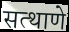
सत्थाणे